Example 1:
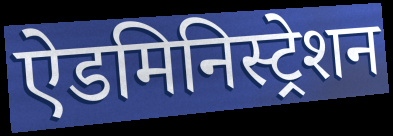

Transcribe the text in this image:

ऐडमिनिस्ट्रेशन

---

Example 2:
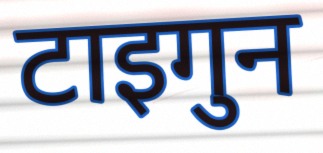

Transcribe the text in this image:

टाइगुन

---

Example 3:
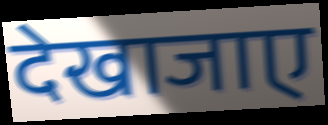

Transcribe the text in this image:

देखाजाए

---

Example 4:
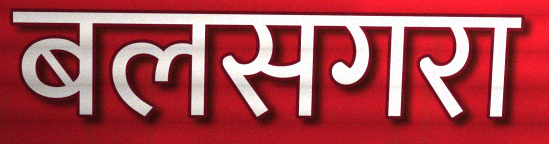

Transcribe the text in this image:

बलसगरा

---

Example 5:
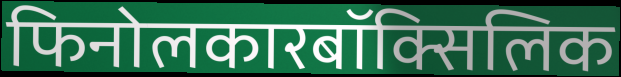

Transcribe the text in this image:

फिनोलकारबॉक्सिलिक